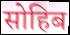
सोहिब